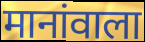
मानांवाला